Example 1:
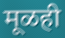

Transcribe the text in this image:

मूळही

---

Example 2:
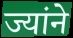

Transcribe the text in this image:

ज्यांने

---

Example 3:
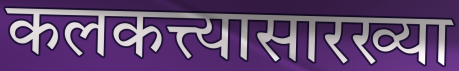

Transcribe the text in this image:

कलकत्त्यासारख्या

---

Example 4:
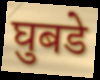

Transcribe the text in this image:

घुबडे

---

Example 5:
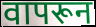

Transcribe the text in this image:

वापरून